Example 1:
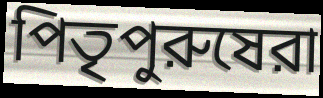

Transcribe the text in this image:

পিতৃপুরুষেরা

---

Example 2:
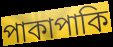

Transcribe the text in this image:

পাকাপাকি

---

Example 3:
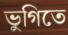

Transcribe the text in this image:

ভুগিতে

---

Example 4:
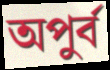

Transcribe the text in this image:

অপুর্ব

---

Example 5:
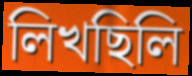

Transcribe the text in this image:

লিখছিলি